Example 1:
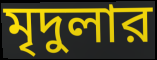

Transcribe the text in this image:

মৃদুলার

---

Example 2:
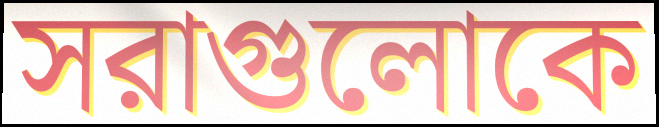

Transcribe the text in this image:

সরাগুলোকে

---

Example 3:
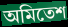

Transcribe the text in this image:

অমিতেশ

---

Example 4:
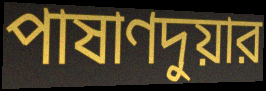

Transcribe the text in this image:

পাষাণদুয়ার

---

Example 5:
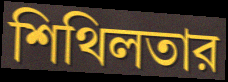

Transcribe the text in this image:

শিথিলতার